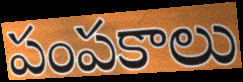
పంపకాలు